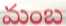
మంబ